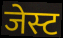
जेस्‍ट